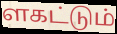
ளகட்டும்